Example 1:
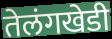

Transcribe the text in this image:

तेलंगखेडी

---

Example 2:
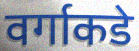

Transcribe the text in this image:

वर्गाकडे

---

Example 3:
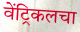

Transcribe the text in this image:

वेंट्रिकलचा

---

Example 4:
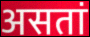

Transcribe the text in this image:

असतां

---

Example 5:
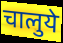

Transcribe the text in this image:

चालुये